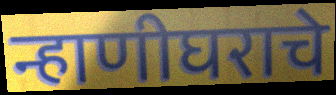
न्हाणीघराचे